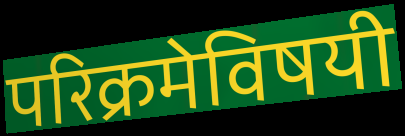
परिक्रमेविषयी